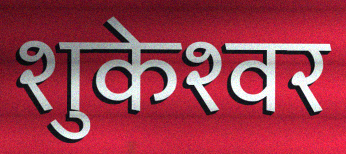
शुकेश्वर